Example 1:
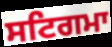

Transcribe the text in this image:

ਸਟਿਗਮਾ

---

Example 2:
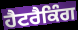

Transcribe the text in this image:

ਹੈਟਰੈਕਿੰਗ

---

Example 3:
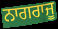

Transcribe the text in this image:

ਨਾਗਰਾਜੂ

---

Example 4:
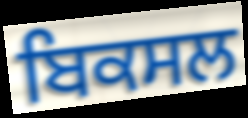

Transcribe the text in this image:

ਬਿਕਸਲ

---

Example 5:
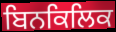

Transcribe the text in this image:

ਬਿਨਕਿਲਿਕ